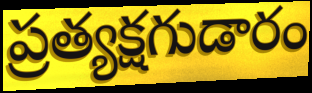
ప్రత్యక్షగుడారం